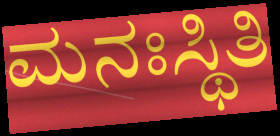
ಮನಃಸ್ಥಿತಿ